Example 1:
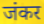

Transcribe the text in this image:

जंकर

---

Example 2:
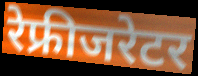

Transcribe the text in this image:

रेफ्रीजरेटर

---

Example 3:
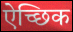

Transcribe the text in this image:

ऐच्छिक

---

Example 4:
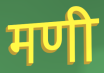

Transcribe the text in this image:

मणी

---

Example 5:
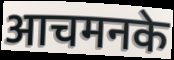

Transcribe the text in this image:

आचमनके